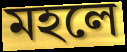
মহলে